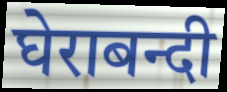
घेराबन्दी